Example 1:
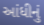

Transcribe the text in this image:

આંધીનું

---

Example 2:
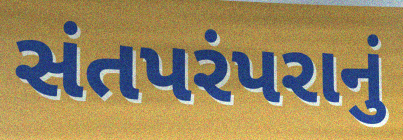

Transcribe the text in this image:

સંતપરંપરાનું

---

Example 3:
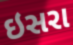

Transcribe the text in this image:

ઇસરા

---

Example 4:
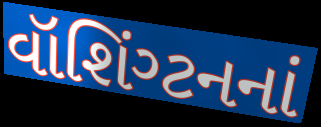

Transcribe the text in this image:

વૉશિંગ્ટનનાં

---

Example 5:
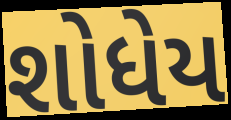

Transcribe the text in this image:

શોધેય